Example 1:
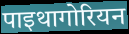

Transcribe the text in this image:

पाइथागोरियन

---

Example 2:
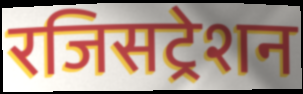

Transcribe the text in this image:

रजिसट्रेशन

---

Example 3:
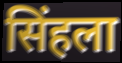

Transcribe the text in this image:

सिंहला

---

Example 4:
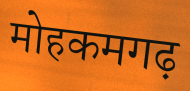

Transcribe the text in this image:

मोहकमगढ़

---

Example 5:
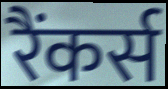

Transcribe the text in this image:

रैंकर्स